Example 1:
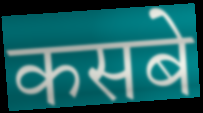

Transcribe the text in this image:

कसबे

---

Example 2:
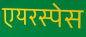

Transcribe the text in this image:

एयरस्पेस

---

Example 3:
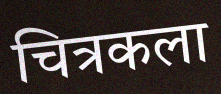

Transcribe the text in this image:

चित्रकला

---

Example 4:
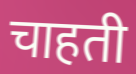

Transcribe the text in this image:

चाहती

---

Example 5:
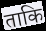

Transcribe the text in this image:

ताकि